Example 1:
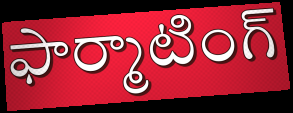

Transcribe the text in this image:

ఫార్మాటింగ్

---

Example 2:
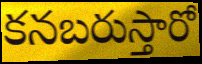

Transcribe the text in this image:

కనబరుస్తారో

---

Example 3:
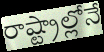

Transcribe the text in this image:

రాష్ట్రాల్లోనే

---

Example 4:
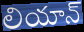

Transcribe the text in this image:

లియాన్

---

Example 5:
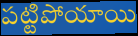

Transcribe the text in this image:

పట్టిపోయాయి